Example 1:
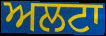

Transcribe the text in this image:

ਅਲਟਾ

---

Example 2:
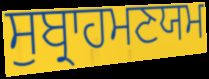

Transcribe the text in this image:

ਸੁਬ੍ਰਾਹਮਣਯਮ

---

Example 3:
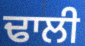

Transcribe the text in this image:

ਢਾਲੀ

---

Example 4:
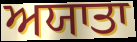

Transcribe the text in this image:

ਅਯਾਤਾ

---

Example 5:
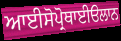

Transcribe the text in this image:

ਆਈਸੋਪ੍ਰੋਥਾਈੳਲਾਨ